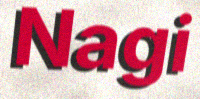
Nagi